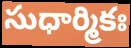
సుధార్మికః